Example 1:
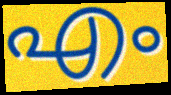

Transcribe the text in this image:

എം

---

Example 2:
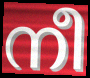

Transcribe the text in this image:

നീ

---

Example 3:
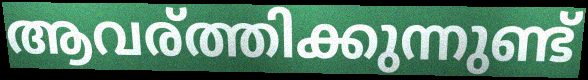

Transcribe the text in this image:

ആവര്ത്തിക്കുന്നുണ്ട്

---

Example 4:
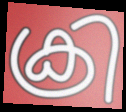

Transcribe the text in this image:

ക്രി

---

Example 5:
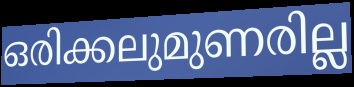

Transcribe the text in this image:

ഒരിക്കലുമുണരില്ല